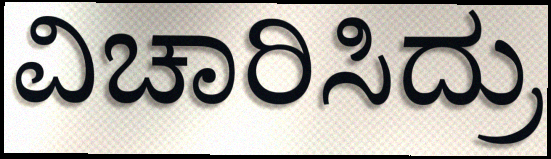
ವಿಚಾರಿಸಿದ್ರು